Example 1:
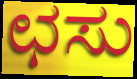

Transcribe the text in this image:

ಛಸು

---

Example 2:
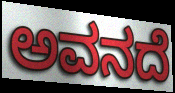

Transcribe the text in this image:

ಅವನದೆ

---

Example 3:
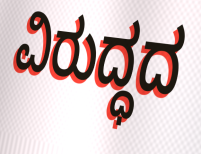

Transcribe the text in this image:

ವಿರುದ್ಧದ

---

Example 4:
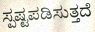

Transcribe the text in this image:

ಸ್ಪಷ್ಟಪಡಿಸುತ್ತದೆ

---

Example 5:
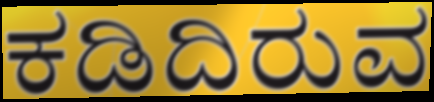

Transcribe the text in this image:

ಕಡಿದಿರುವ